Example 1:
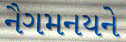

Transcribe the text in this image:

નૈગમનયને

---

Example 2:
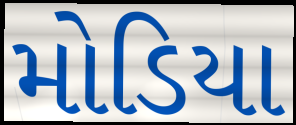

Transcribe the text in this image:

મોડિયા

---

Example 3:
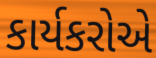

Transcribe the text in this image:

કાર્યકરોએ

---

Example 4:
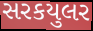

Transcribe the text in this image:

સરકયુલર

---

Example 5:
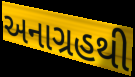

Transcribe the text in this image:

અનાગ્રહથી